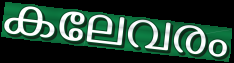
കലേവരം